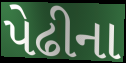
પેઢીના